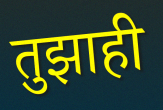
तुझाही